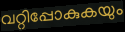
വറ്റിപ്പോകുകയും